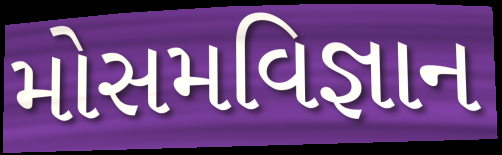
મોસમવિજ્ઞાન